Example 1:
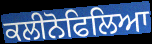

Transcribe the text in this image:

ਕਲੀਨੋਫਿਲਿਆ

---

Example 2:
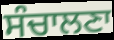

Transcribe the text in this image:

ਸੰਚਾਲਣਾ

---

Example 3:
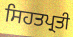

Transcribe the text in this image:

ਸਿਹਤਪ੍ਰਤੀ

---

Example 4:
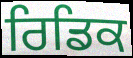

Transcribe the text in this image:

ਰਿਡਿਕ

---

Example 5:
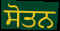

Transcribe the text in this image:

ਸੋਤਨ